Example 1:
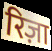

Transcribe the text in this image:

रिज़ा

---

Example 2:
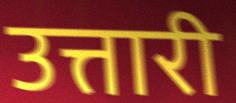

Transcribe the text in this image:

उत्तारी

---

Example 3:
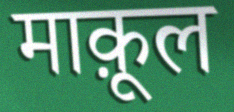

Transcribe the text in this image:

माक़ूल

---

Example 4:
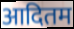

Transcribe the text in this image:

आदितम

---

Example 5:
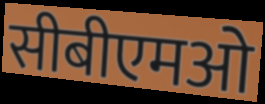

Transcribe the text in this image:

सीबीएमओ